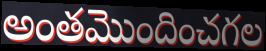
అంతమొందించగల